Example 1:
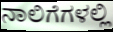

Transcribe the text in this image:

ನಾಲಿಗೆಗಳಲ್ಲಿ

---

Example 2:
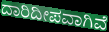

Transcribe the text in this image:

ದಾರಿದೀಪವಾಗಿವೆ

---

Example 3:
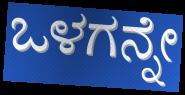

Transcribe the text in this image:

ಒಳಗನ್ನೇ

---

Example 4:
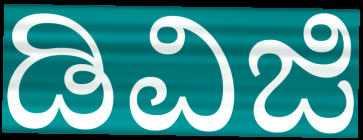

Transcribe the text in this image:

ಡಿವಿಜಿ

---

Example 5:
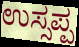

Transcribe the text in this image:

ಉಸ್ಸಪ್ಪ